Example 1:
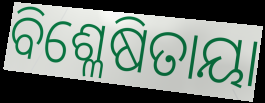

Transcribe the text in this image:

ବିଶ୍ଳେଷିତାୟା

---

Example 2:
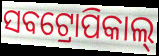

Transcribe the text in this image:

ସବଟ୍ରୋପିକାଲ୍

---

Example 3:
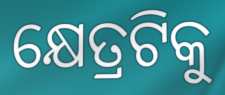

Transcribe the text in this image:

କ୍ଷେତ୍ରଟିକୁ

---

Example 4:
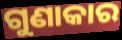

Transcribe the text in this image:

ଗୁଣାକାର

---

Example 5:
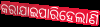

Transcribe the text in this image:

କରାଯାଇପାରିହେଲାଣି